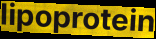
lipoprotein